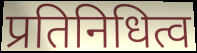
प्रतिनिधित्व